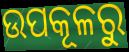
ଉପକୂଳରୁ